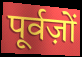
पूर्वज़ों